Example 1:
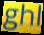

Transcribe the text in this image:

ghl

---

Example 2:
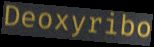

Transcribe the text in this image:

Deoxyribo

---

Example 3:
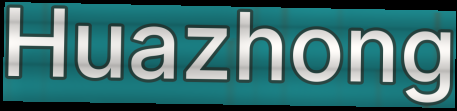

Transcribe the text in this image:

Huazhong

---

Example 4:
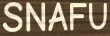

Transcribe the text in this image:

SNAFU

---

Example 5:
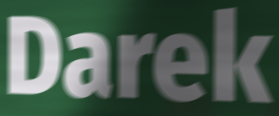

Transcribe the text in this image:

Darek